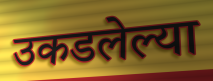
उकडलेल्या